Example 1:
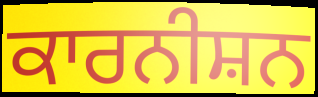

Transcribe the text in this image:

ਕਾਰਨੀਸ਼ਨ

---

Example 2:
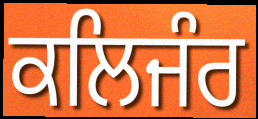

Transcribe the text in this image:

ਕਲਿਜੰਰ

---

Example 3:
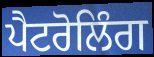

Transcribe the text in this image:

ਪੈਟਰੋਲਿੰਗ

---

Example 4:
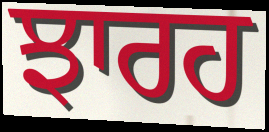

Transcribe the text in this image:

ਝਾਰਹ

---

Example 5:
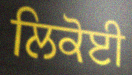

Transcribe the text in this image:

ਲਿਕੋਈ